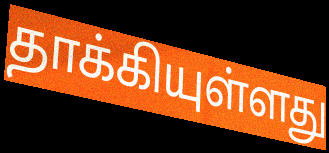
தாக்கியுள்ளது